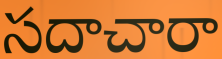
సదాచారా